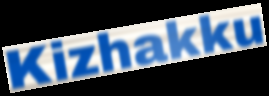
Kizhakku